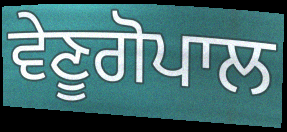
ਵੇਣੂਗੋਪਾਲ